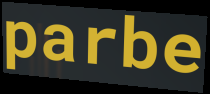
parbe